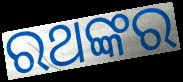
ରଥଙ୍କର